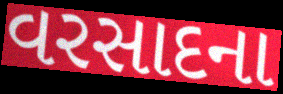
વરસાદના